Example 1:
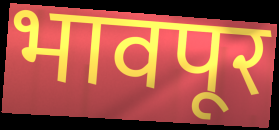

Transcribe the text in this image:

भावपूर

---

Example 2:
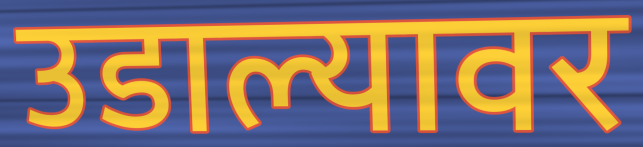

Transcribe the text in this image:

उडाल्यावर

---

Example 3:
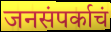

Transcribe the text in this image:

जनसंपर्काचं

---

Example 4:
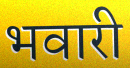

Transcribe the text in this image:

भवारी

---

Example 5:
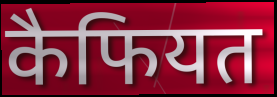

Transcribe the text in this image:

कैफियत